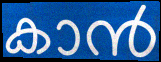
കാൻ